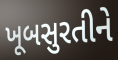
ખૂબસુરતીને